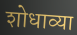
शोधाव्या